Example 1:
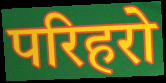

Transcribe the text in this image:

परिहरो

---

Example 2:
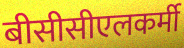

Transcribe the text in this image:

बीसीसीएलकर्मी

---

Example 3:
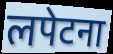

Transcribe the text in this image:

लपेटना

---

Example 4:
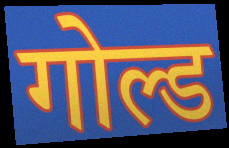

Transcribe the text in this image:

गोल्‍ड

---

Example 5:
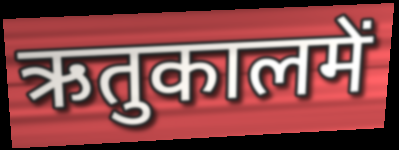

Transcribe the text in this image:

ऋतुकालमें